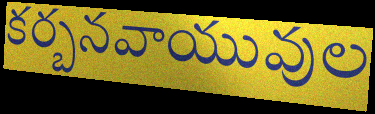
కర్బనవాయువుల